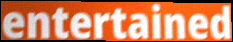
entertained